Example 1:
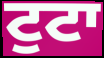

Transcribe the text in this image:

ਟੁਟਾ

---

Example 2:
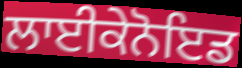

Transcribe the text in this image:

ਲਾਈਕੇਨੋਇਡ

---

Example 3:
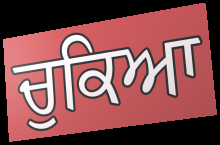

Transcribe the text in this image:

ਚੁਕਿਆ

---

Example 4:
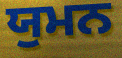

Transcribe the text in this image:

ਯੁਮਨ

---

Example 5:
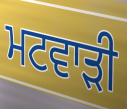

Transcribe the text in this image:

ਮਟਵਾੜੀ